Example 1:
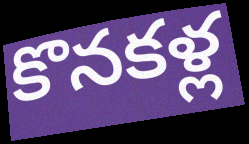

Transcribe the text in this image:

కొనకళ్ల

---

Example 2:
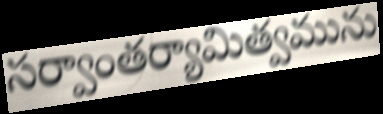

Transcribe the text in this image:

సర్వాంతర్యామిత్వమును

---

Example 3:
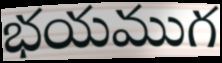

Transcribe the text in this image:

భయముగ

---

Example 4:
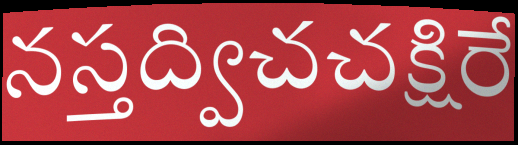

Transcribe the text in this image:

నస్తద్విచచక్షిరే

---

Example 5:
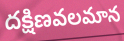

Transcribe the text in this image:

దక్షిణవలమాన